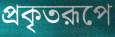
প্রকৃতরূপে